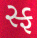
સ્ફ